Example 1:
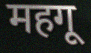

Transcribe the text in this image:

महगू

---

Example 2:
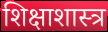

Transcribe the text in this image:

शिक्षाशास्त्र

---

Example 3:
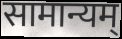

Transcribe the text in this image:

सामान्यम्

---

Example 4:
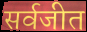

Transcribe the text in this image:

सर्वजीत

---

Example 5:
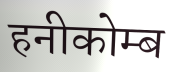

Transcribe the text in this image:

हनीकोम्ब